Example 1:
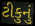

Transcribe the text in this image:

ટીકુનું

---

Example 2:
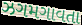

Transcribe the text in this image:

ઝગમગાવતા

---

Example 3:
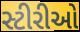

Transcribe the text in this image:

સ્ટીરીઓ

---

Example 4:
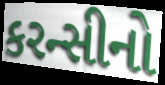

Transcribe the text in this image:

કરન્સીનો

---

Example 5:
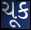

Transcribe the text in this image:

ચૂક